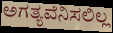
ಅಗತ್ಯವೆನಿಸಲಿಲ್ಲ